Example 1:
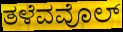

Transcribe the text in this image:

ತಳೆವವೊಲ್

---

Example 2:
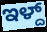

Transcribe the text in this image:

ಇಳ್ದ್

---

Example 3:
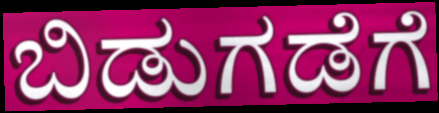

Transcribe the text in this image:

ಬಿಡುಗಡೆಗೆ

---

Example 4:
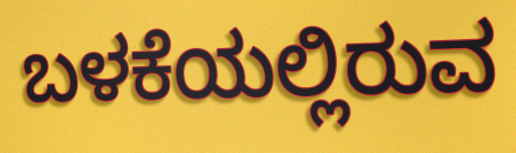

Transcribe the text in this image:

ಬಳಕೆಯಲ್ಲಿರುವ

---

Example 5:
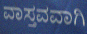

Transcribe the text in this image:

ವಾಸ್ತವವಾಗಿ